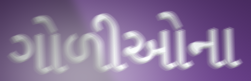
ગોળીઓના